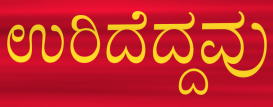
ಉರಿದೆದ್ದವು